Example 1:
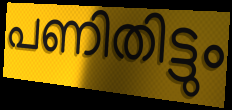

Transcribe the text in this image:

പണിതിട്ടും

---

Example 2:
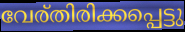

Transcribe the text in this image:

വേര്തിരിക്കപ്പെട്ടു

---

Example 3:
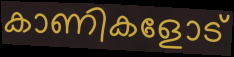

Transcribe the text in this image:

കാണികളോട്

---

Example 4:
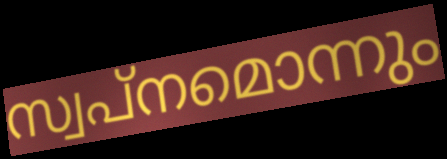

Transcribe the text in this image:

സ്വപ്നമൊന്നും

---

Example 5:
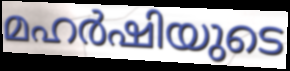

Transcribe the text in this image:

മഹർഷിയുടെ